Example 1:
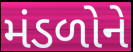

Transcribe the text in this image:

મંડળોને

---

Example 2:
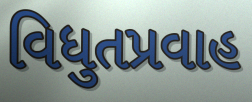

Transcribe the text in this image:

વિધુતપ્રવાહ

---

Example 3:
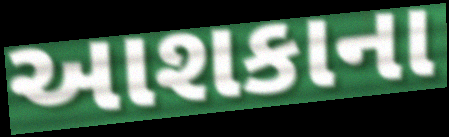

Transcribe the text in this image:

આશકાના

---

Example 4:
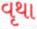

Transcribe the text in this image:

વૃથા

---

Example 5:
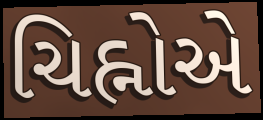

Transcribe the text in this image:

ચિહ્નોએ